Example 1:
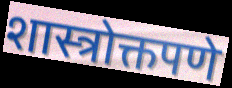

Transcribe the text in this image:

शास्त्रोक्तपणे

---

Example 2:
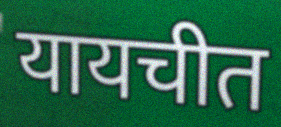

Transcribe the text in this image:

यायचीत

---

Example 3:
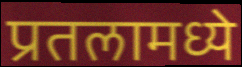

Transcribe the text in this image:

प्रतलामध्ये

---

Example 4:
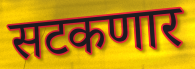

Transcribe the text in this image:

सटकणार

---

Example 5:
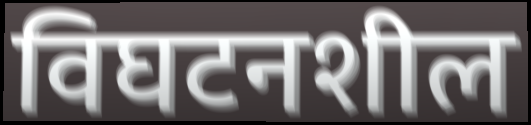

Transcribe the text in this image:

विघटनशील